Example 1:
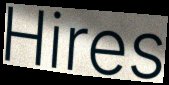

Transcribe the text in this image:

Hires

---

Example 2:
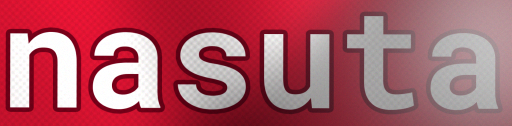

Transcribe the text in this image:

nasuta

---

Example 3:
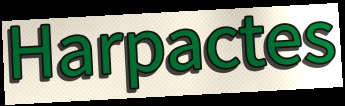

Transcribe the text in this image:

Harpactes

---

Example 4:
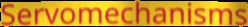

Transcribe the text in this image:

Servomechanisms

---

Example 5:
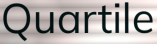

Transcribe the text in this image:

Quartile